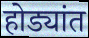
होड्यांत